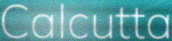
Calcutta